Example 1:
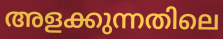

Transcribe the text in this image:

അളക്കുന്നതിലെ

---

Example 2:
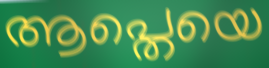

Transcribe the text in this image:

ആപ്തെയെ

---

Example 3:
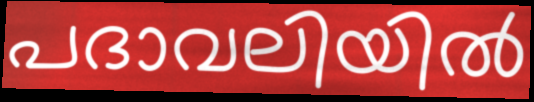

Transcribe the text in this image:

പദാവലിയിൽ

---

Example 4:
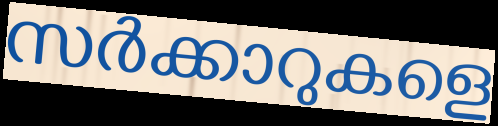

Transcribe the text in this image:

സർക്കാറുകളെ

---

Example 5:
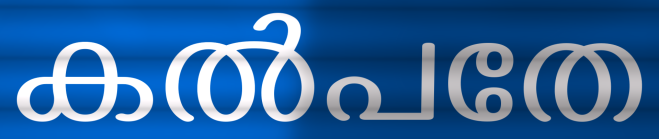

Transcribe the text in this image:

കൽപതേ